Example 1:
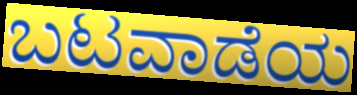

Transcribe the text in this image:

ಬಟವಾಡೆಯ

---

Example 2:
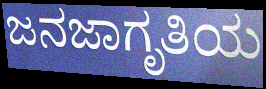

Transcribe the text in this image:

ಜನಜಾಗೃತಿಯ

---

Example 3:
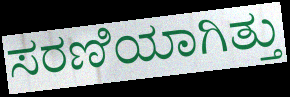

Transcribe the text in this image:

ಸರಣಿಯಾಗಿತ್ತು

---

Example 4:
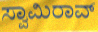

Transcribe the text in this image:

ಸ್ವಾಮಿರಾವ್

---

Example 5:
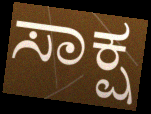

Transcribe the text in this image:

ಸಾಕ್ಷ